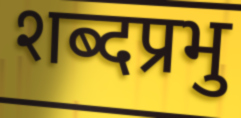
शब्दप्रभु